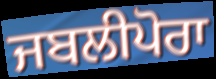
ਜਬਲੀਪੋਰਾ